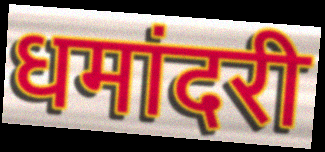
धमांदरी